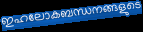
ഇഹലോകബന്ധനങ്ങളുടെ